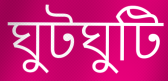
ঘুটঘুটি